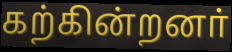
கற்கின்றனர்